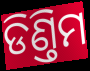
ଡିଣ୍ତିମ